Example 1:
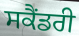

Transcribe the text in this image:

ਸਕੈਂਡਰੀ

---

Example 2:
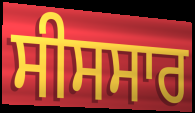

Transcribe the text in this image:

ਸੀਸਸਾਰ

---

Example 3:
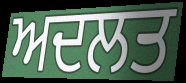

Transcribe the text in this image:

ਅਦਲਤ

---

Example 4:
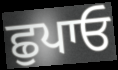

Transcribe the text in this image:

ਛੁਪਾਓ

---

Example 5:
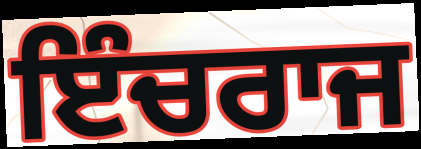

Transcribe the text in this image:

ਇੰਚਰਾਜ